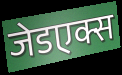
जेडएक्स